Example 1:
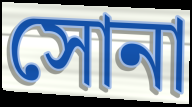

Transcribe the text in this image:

সোনা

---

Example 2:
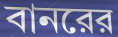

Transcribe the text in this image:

বানরের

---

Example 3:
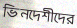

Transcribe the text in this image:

ভিনদেশীদের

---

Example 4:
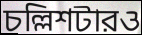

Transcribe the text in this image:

চল্লিশটারও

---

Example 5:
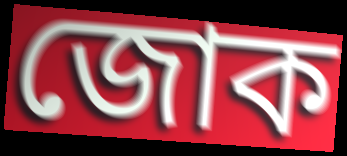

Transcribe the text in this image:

জোক